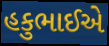
હકુભાઈએ